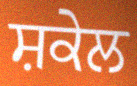
ਸ਼ਕੇਲ